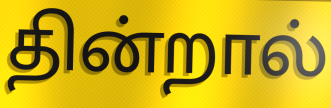
தின்றால்